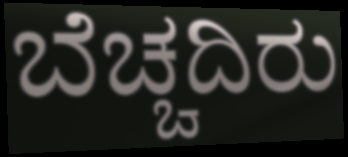
ಬೆಚ್ಚದಿರು